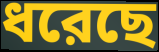
ধরেছে